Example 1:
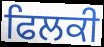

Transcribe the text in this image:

ਫਿਲਕੀ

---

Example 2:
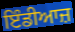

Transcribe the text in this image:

ਇੰਡੀਆਜ਼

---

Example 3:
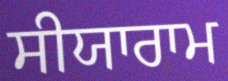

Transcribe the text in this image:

ਸੀਯਾਰਾਮ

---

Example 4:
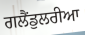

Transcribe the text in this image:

ਗਲੈਂਡੁਲਰੀਆ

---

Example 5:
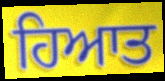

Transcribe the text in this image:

ਹਿਆਤ